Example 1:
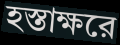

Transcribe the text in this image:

হস্তাক্ষরে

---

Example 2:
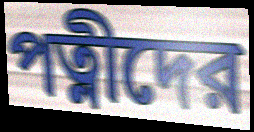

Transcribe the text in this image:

পত্নীদের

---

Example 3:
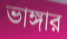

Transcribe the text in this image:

ভাঙ্গার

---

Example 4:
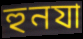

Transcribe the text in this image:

হুনযা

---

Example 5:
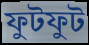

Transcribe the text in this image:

ফুটফুট